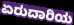
ಏರುದಾರಿಯ